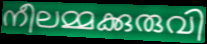
നീലമ്മക്കുരുവി